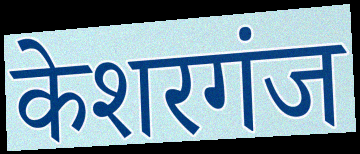
केशरगंज